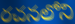
రచనలోని